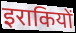
इराकियों